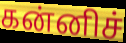
கன்னிச்